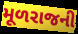
મૂળરાજની